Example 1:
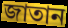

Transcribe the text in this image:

জাতান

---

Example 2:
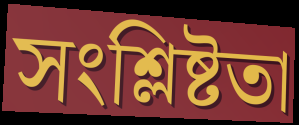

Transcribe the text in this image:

সংশ্লিষ্টতা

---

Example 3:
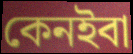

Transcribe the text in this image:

কেনইবা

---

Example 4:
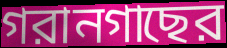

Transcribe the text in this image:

গরানগাছের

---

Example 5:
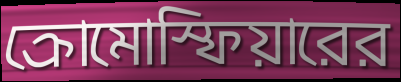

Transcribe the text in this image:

ক্রোমোস্ফিয়ারের